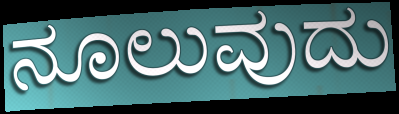
ನೂಲುವುದು